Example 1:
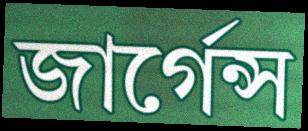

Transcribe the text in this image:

জার্গেন্স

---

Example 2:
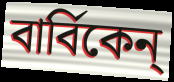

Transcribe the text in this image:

বার্বিকেন্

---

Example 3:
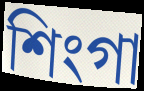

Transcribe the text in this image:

শিংগা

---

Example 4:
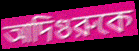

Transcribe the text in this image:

আদিগুরুকে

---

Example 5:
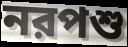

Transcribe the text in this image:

নরপশু